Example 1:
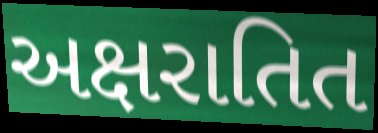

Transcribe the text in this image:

અક્ષરાતિત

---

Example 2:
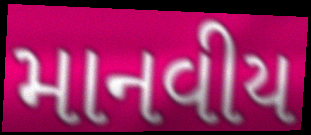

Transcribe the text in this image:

માનવીય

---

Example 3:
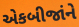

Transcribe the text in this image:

એકબીજાંને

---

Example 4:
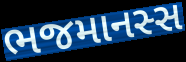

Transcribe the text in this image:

ભજમાનસ્સ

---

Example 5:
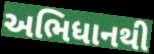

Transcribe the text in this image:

અભિધાનથી